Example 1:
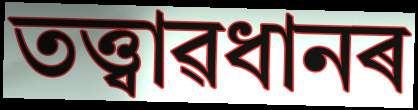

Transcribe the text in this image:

তত্ত্বাৱধানৰ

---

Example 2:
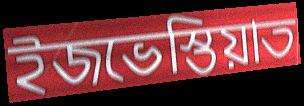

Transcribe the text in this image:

ইজভেস্তিয়াত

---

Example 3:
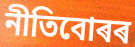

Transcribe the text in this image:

নীতিবোৰৰ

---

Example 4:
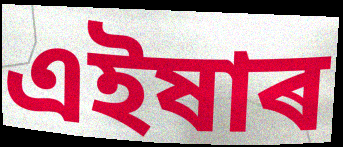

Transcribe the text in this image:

এইষাৰ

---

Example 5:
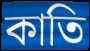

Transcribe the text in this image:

কাতি